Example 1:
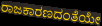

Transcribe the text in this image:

ರಾಜಕಾರಣದಂತೆಯೇ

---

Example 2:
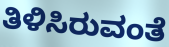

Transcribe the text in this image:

ತಿಳಿಸಿರುವಂತೆ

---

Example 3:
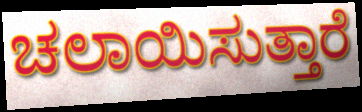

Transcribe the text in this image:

ಚಲಾಯಿಸುತ್ತಾರೆ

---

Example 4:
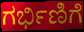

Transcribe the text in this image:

ಗರ್ಭಿಣಿಗೆ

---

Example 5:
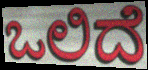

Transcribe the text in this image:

ಒಲಿದೆ